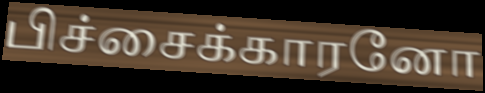
பிச்சைக்காரனோ